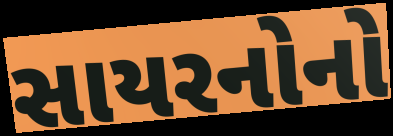
સાયરનોનો